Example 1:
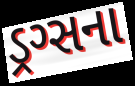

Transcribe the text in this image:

ડ્રગ્સના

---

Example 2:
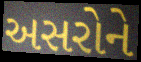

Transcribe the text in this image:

અસરોને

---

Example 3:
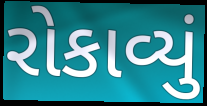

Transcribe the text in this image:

રોકાવ્યું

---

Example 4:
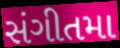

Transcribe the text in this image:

સંગીતમા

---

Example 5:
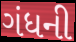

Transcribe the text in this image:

ગંધની